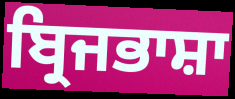
ਬ੍ਰਿਜਭਾਸ਼ਾ